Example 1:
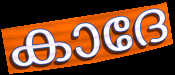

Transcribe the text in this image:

കാദേ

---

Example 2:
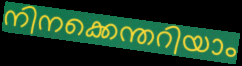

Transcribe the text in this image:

നിനക്കെന്തറിയാം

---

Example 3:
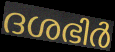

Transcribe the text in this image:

ദശഭിർ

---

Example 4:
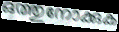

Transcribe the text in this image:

ഒത്തുനോക്കുക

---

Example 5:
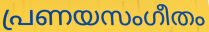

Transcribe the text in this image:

പ്രണയസംഗീതം